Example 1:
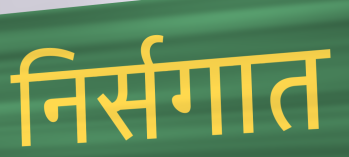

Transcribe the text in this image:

निर्सगात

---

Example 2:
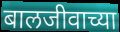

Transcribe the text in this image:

बालजीवाच्या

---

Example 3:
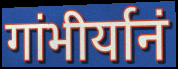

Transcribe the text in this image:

गांभीर्यानं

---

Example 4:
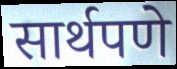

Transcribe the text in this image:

सार्थपणे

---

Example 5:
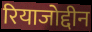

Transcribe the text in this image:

रियाजोद्दीन